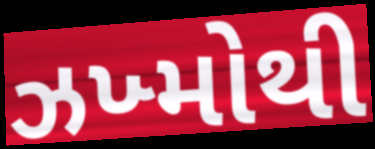
ઝખ્મોથી